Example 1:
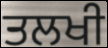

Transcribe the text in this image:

ਤਲਖੀ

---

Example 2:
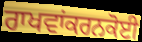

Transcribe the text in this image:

ਰਾਖਵਾਂਕਰਨਕੋਈ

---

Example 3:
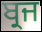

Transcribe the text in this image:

ਬ੍ਰਜ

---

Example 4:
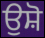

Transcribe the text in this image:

ਉਸ਼ੋ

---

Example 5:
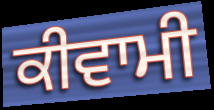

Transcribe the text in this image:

ਕੀਵਾਮੀ